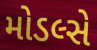
મોડલ્સે